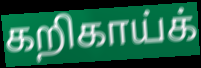
கறிகாய்க்